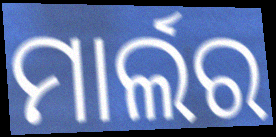
ମାର୍ଲର